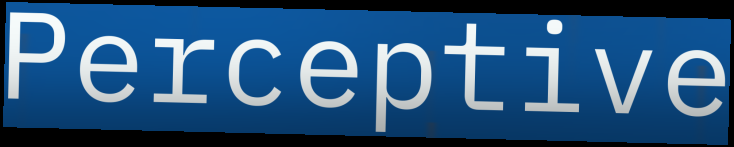
Perceptive